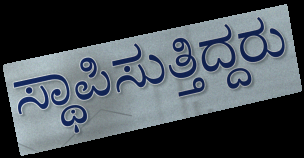
ಸ್ಥಾಪಿಸುತ್ತಿದ್ದರು